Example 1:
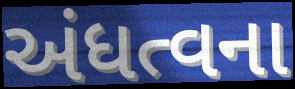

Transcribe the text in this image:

અંધત્વના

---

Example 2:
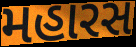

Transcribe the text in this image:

મહારસ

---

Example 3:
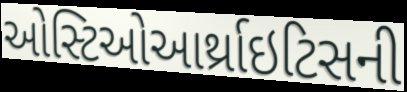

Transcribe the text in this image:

ઓસ્ટિઓઆર્થ્રાઇટિસની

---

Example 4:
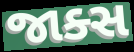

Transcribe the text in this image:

જાક્સ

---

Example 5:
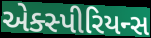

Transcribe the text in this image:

એક્સ્પીરિયન્સ